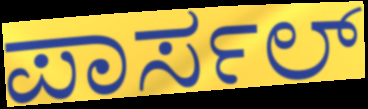
ಪಾರ್ಸಲ್